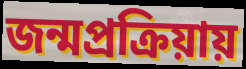
জন্মপ্রক্রিয়ায়